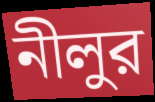
নীলুর